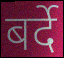
बर्दे